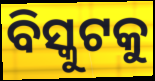
ବିସ୍କୁଟକୁ